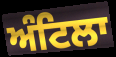
ਅੰਟਿਲਾ